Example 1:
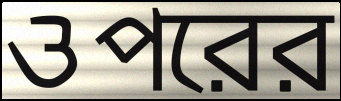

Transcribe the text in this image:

ওপরের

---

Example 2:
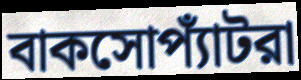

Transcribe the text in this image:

বাকসোপ্যাঁটরা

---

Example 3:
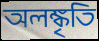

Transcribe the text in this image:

অলঙ্কৃতি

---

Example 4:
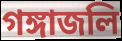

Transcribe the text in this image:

গঙ্গাজলি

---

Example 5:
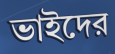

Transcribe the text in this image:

ভাইদের